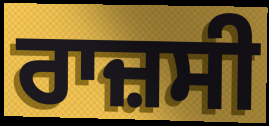
ਰਾਜ਼ਸੀ